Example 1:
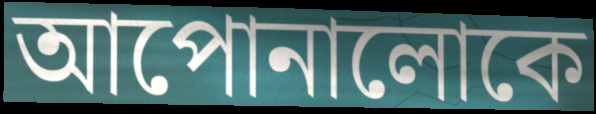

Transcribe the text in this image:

আপোনালোকে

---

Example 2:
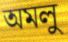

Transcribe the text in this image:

অমলু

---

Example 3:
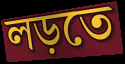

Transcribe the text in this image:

লড়তে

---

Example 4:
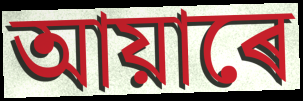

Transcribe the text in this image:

আয়াৰে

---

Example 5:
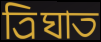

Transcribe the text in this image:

ত্ৰিঘাত